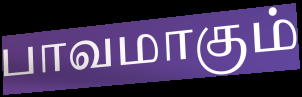
பாவமாகும்